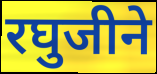
रघुजीने